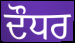
ਦੌਧਰ